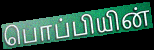
பொப்பியின்